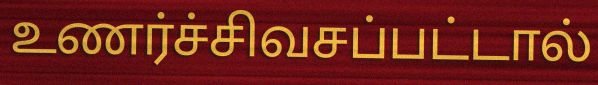
உணர்ச்சிவசப்பட்டால்